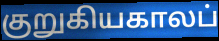
குறுகியகாலப்